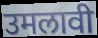
उमलावी